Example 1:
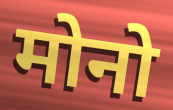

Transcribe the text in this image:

मोनो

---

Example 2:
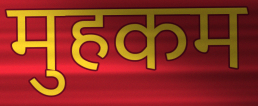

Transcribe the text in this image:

मुहकम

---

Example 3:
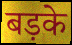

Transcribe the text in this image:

बड़के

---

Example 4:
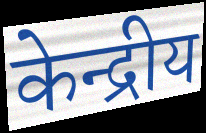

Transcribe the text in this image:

केन्द्रीय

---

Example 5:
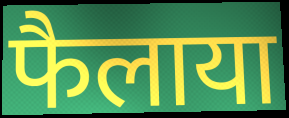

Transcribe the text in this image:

फैलाया